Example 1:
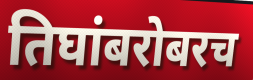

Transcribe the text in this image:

तिघांबरोबरच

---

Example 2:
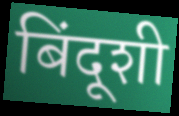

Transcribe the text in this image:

बिंदूशी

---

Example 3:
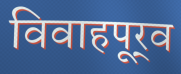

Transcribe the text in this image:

विवाहपूर्व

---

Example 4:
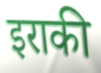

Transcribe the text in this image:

इराकी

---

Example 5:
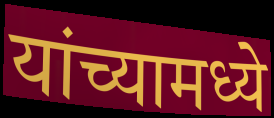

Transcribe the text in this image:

यांच्यामध्ये